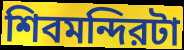
শিবমন্দিরটা